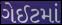
ગેઈટમાં